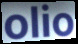
olio